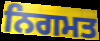
ਨਿਗਮਤ